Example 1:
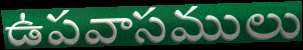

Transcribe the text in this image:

ఉపవాసములు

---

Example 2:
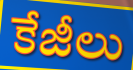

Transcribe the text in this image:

కేజీలు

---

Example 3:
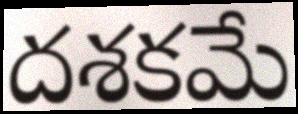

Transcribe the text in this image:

దశకమే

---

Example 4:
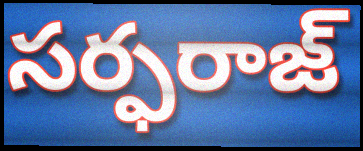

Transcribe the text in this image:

సర్ఫరాజ్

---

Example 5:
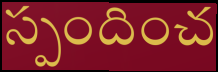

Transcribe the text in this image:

స్పందించ